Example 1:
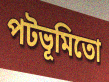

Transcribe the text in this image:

পটভূমিতো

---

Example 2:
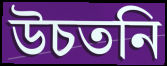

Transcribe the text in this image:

উচতনি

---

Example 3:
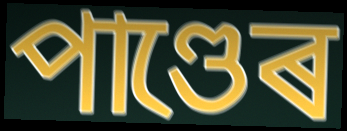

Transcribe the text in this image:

পাণ্ডেৰ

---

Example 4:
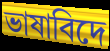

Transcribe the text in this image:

ভাষাবিদে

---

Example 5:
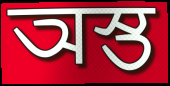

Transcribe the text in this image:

অস্ত